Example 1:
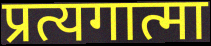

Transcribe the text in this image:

प्रत्यगात्मा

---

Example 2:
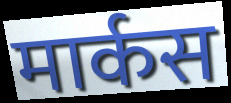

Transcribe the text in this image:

मार्कस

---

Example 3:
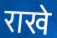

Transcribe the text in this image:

राखे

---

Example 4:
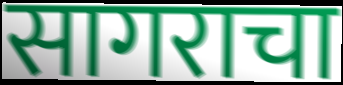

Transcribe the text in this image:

सागराचा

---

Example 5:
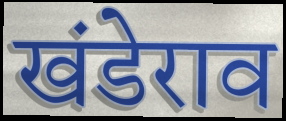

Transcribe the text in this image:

खंडेराव